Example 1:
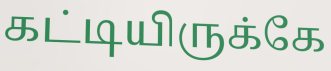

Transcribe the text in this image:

கட்டியிருக்கே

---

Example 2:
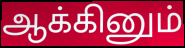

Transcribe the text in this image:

ஆக்கினும்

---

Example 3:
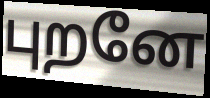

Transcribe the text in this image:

புறனே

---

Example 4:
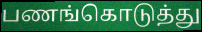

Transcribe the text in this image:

பணங்கொடுத்து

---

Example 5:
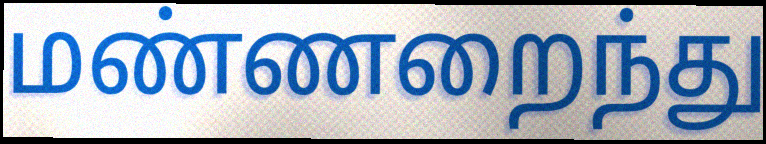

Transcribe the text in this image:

மண்ணறைந்து